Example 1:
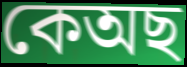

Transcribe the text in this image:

কেঅছ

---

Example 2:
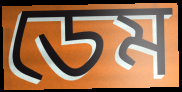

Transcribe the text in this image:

ডেম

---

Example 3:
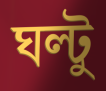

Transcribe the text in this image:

ঘল্টু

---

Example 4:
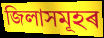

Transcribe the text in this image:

জিলাসমূহৰ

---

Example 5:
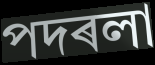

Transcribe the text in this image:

পদৰলা